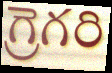
గ్రెగరి